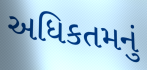
અધિકતમનું